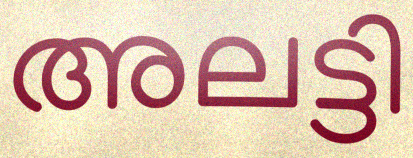
അലട്ടി